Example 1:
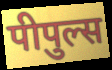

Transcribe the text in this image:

पीपुल्स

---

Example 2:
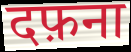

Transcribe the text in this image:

दफ़ना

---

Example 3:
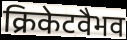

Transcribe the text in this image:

क्रिकेटवैभव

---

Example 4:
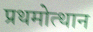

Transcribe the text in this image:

प्रथमोत्थान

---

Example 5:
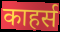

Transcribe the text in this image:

काहर्स